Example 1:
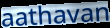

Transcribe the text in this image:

aathavan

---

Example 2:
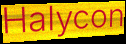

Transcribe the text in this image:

Halycon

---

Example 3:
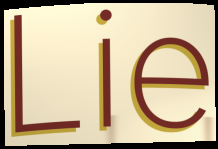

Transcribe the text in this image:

Lie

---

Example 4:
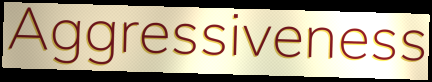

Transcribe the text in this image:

Aggressiveness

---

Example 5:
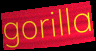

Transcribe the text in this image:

gorilla